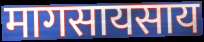
मागसायसाय